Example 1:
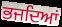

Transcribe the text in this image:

ਭਜਦਿਆਂ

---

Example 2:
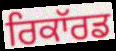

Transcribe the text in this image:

ਰਿਕਾੱਰਡ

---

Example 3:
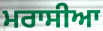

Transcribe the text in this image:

ਮਰਾਸੀਆ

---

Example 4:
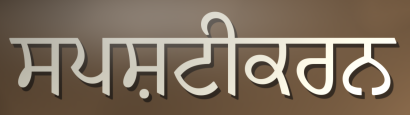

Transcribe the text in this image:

ਸਪਸ਼ਟੀਕਰਨ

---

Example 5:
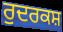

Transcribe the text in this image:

ਰੁਦਰਕਸ਼